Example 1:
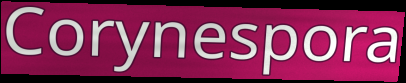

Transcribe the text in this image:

Corynespora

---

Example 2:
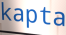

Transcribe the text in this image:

kapta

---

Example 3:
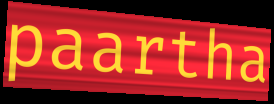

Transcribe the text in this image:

paartha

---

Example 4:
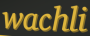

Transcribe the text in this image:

wachli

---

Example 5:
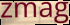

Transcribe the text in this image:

zmag